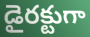
డైరక్టుగా